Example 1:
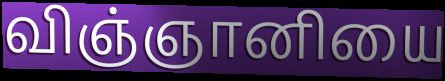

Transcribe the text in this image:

விஞ்ஞானியை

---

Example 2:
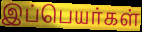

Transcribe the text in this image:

இப்பெயர்கள்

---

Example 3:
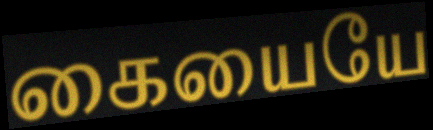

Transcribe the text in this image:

கையையே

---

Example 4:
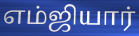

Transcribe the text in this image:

எம்ஜியார்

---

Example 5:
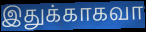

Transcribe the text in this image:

இதுக்காகவா